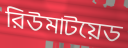
রিউমাটয়েড